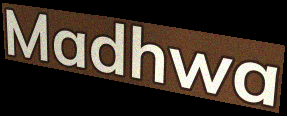
Madhwa